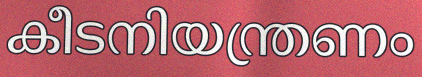
കീടനിയന്ത്രണം